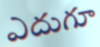
ఎదుగూ